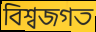
বিশ্বজগত